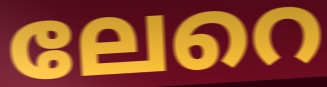
ലേറെ